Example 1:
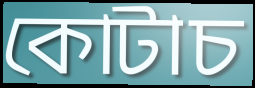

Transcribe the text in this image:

কোটাচ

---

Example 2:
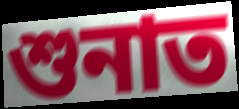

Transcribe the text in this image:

শুনাত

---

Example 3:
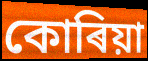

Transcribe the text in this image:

কোৰিয়া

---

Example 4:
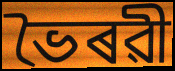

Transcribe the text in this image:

ভৈৰৱী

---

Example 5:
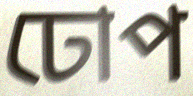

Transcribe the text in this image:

ঢোপ